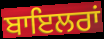
ਬਾਇਲਰਾਂ